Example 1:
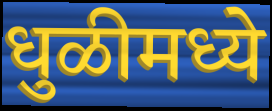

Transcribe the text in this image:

धुळीमध्ये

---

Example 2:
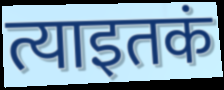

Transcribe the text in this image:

त्याइतकं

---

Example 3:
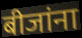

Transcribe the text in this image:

बीजांना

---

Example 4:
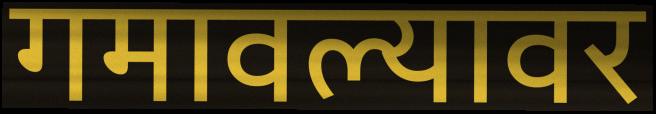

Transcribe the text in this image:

गमावल्यावर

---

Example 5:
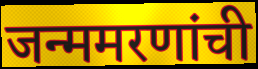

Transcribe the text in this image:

जन्ममरणांची